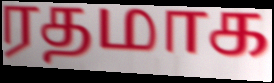
ரதமாக